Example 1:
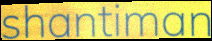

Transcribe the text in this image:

shantiman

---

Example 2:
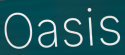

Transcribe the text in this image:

Oasis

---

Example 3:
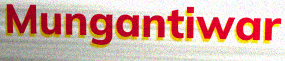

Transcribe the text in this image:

Mungantiwar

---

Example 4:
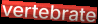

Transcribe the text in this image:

vertebrate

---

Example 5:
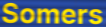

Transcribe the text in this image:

Somers